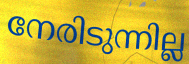
നേരിടുന്നില്ല